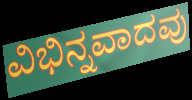
ವಿಭಿನ್ನವಾದವು